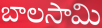
బాలసామి